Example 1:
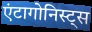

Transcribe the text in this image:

एंटागोनिस्ट्स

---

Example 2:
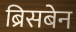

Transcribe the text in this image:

ब्रिसबेन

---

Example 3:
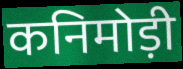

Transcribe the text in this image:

कनिमोड़ी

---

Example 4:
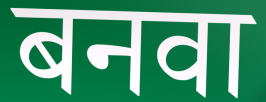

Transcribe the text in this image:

बनवा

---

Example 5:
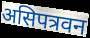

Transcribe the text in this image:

असिपत्रवन